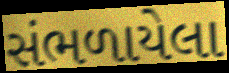
સંભળાયેલા